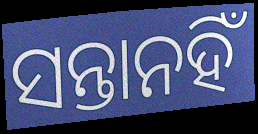
ସନ୍ତାନହିଁ